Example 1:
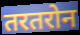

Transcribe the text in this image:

तरतरोन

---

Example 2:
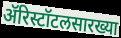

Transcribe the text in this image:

ॲरिस्टॉटलसारख्या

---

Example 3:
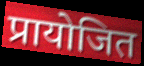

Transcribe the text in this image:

प्रायोजित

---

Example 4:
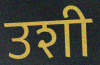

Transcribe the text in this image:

उशी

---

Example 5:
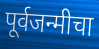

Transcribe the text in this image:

पूर्वजन्मीचा